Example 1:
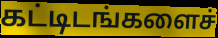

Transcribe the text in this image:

கட்டிடங்களைச்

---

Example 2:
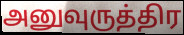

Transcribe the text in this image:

அனுவுருத்திர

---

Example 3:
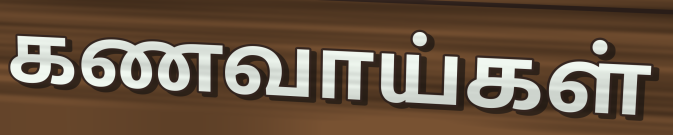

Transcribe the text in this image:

கணவாய்கள்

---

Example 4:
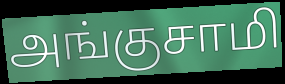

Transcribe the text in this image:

அங்குசாமி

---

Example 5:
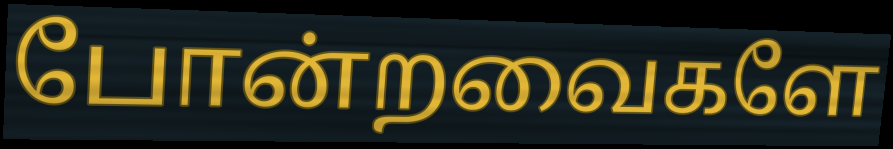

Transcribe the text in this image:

போன்றவைகளே